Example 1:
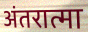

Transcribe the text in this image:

अंतरात्मा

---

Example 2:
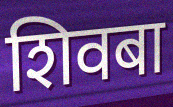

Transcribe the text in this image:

शिवबा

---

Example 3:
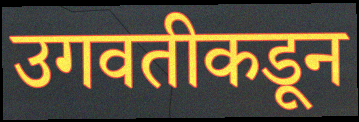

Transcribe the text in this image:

उगवतीकडून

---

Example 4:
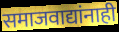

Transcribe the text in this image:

समाजवाद्यांनाही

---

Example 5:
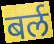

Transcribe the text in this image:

बर्ल